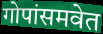
गोपांसमवेत